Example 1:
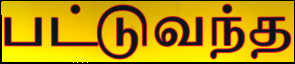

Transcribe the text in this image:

பட்டுவந்த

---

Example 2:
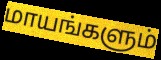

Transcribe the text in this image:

மாயங்களும்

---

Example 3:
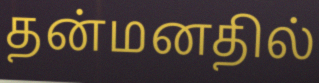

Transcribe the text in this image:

தன்மனதில்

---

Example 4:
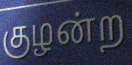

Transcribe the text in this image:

குழன்ற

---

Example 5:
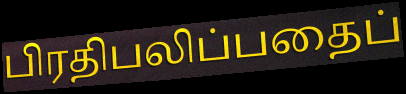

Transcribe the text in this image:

பிரதிபலிப்பதைப்